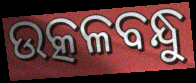
ଉତ୍କଳବନ୍ଧୁ